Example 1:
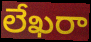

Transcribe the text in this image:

లేఖరా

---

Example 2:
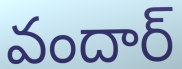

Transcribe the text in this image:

వందార్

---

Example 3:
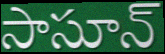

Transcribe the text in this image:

సాసూన్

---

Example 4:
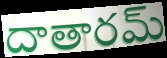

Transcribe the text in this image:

దాతారమ్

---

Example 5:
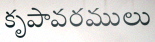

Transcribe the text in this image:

కృపావరములు